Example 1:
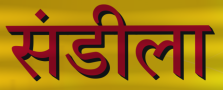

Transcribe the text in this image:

संडीला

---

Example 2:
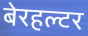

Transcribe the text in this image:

बेरहल्टर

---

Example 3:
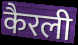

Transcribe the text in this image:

कैरली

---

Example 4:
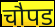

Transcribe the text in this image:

चौपड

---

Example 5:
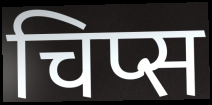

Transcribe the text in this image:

चिप्‍स